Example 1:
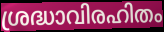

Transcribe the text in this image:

ശ്രദ്ധാവിരഹിതം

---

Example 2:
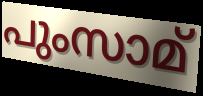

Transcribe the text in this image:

പുംസാമ്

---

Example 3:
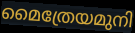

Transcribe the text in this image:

മൈത്രേയമുനി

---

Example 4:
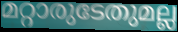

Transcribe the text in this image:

മറ്റാരുടേതുമല്ല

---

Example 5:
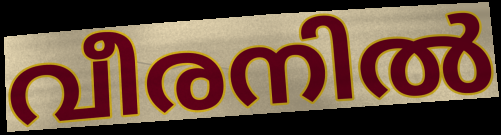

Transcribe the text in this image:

വീരനിൽ